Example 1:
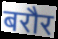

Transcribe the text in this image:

बरौर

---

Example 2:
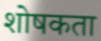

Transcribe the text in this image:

शोषकता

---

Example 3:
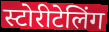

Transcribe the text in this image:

स्टोरीटेलिंग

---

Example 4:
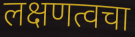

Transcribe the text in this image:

लक्षणत्वचा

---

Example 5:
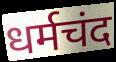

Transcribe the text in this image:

धर्मचंद